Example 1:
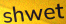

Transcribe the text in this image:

shwet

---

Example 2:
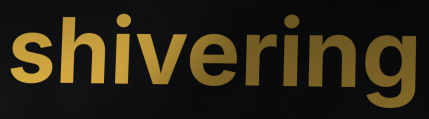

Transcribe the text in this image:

shivering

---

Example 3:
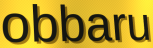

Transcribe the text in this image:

obbaru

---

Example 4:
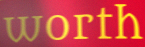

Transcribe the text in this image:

worth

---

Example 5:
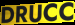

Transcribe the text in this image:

DRUCC